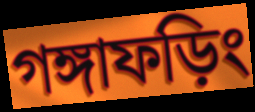
গঙ্গাফড়িং